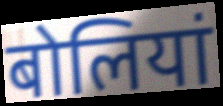
बोलियां